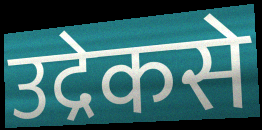
उद्रेकसे